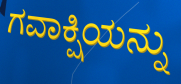
ಗವಾಕ್ಷಿಯನ್ನು